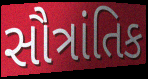
સૌત્રાંતિક